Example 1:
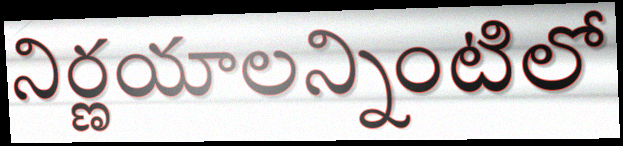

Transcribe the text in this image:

నిర్ణయాలన్నింటిలో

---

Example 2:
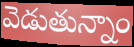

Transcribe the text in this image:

వెడుతున్నాం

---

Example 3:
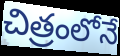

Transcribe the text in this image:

చిత్రంలోనే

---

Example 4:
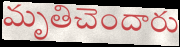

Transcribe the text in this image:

మృతిచెందారు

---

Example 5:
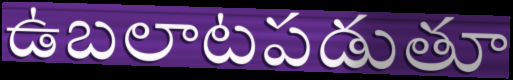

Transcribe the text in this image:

ఉబలాటపడుతూ